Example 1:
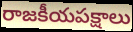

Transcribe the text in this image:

రాజకీయపక్షాలు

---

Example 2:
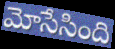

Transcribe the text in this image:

మోసేసింది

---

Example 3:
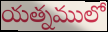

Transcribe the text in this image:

యత్నములో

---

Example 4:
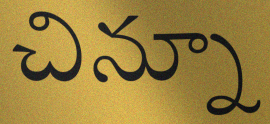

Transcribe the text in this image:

చిన్నూ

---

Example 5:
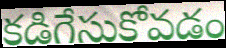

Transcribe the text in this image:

కడిగేసుకోవడం